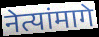
नेत्यांमागे